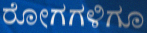
ರೋಗಗಳಿಗೂ